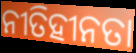
ନୀତିହୀନତା